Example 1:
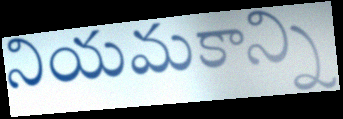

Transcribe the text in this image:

నియమకాన్ని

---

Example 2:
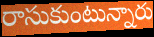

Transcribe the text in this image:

రాసుకుంటున్నారు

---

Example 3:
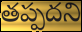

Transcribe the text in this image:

తప్పదని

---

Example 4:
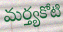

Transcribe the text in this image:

మర్త్యకోటి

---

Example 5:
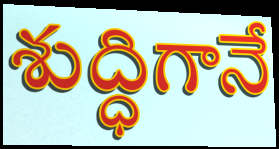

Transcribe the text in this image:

శుద్ధిగానే